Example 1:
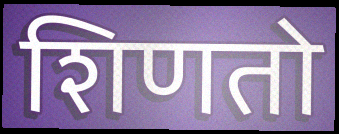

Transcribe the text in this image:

शिणतो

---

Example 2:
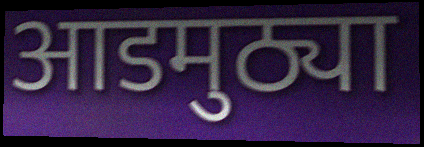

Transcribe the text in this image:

आडमुठ्या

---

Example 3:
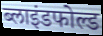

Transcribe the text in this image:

ब्लाइंडफोल्ड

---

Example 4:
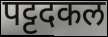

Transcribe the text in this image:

पट्टदकल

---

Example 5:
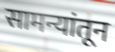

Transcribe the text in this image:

सामन्यांतून